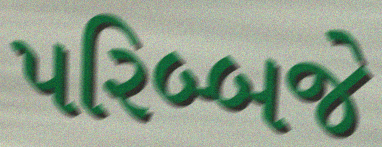
પરિબ્બજે